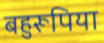
बहुरूपिया